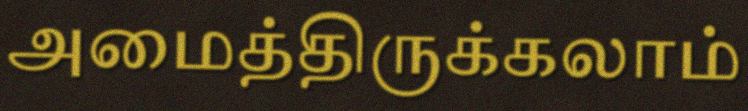
அமைத்திருக்கலாம்